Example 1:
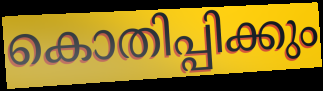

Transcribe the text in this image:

കൊതിപ്പിക്കും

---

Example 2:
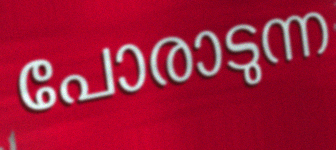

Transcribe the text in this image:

പോരാടുന്ന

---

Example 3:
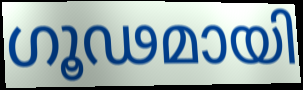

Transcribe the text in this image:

ഗൂഢമായി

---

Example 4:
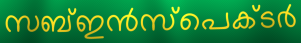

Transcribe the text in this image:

സബ്ഇൻസ്പെക്ടർ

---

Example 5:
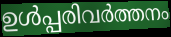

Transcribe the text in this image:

ഉൾപ്പരിവർത്തനം